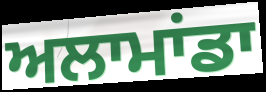
ਅਲਾਮਾਂਡਾ